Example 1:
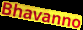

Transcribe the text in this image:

Bhavanno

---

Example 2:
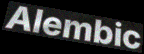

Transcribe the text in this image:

Alembic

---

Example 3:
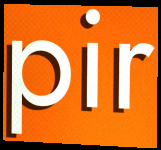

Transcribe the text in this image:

pir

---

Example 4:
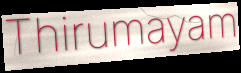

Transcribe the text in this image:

Thirumayam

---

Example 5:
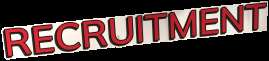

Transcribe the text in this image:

RECRUITMENT